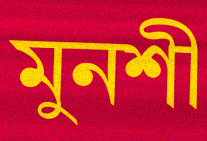
মুনশী